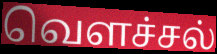
வெளச்சல்